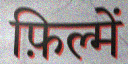
फ़िल्में